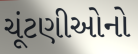
ચૂંટણીઓનો